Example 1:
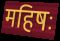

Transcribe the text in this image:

महिषः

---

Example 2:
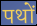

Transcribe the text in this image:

पथों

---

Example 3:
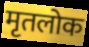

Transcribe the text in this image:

मृतलोक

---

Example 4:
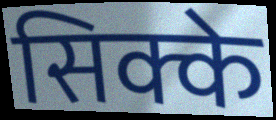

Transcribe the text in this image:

सिक्के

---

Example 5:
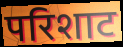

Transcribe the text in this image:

परिशाट